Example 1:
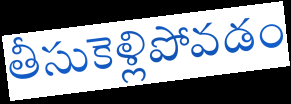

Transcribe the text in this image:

తీసుకెళ్లిపోవడం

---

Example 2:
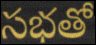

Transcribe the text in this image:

సభతో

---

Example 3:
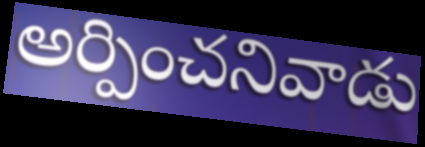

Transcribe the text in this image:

అర్పించనివాడు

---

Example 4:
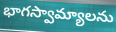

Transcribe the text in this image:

భాగస్వామ్యాలను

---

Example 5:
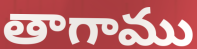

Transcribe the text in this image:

తాగాము